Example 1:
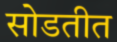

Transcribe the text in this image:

सोडतीत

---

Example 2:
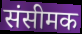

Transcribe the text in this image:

संसीमक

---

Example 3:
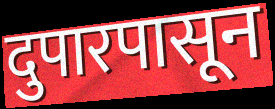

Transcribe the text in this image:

दुपारपासून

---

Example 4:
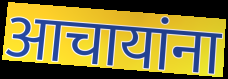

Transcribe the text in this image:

आचायांना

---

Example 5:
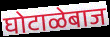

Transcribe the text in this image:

घोटाळेबाज